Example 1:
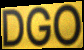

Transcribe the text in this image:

DGO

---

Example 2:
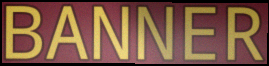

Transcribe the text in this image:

BANNER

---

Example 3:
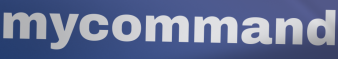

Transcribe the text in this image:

mycommand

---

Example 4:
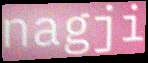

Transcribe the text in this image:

nagji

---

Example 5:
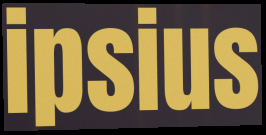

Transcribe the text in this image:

ipsius